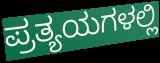
ಪ್ರತ್ಯಯಗಳಲ್ಲಿ